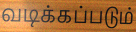
வடிக்கப்படும்